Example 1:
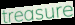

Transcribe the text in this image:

treasure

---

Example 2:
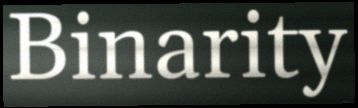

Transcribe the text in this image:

Binarity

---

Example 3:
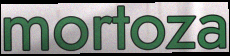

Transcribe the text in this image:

mortoza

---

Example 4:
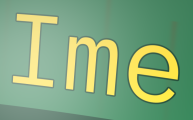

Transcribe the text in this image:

Ime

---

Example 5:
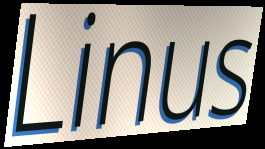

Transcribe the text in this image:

Linus